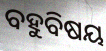
ବହୁବିଷୟ